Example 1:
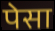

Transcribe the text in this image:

पेसा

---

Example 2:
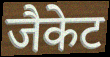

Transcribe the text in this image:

जैकेट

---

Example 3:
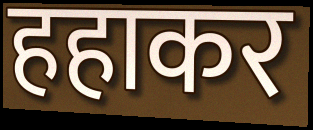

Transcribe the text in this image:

हहाकर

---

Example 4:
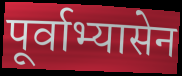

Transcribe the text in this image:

पूर्वाभ्यासेन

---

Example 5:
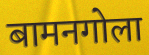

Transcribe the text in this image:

बामनगोला